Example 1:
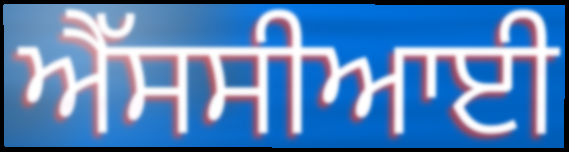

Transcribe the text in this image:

ਐੱਸਸੀਆਈ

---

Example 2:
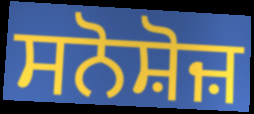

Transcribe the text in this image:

ਸਨੋਸ਼ੋਜ਼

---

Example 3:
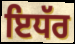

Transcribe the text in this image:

ਇਧੱਰ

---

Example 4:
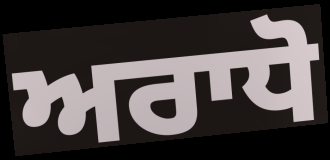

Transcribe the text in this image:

ਅਰਾਧੋ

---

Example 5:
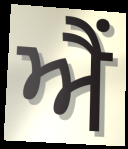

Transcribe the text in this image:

ਐਂ